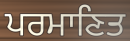
ਪਰਮਾਣਿਤ